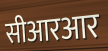
सीआरआर